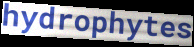
hydrophytes